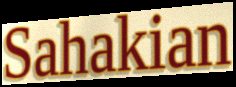
Sahakian